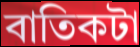
বাতিকটা